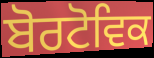
ਬੋਰਟੋਵਿਕ